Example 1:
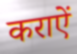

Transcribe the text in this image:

कराऐं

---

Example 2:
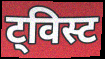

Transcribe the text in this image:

ट्विस्ट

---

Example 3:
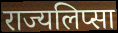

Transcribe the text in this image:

राज्यलिप्सा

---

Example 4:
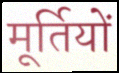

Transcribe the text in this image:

मूर्तियों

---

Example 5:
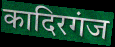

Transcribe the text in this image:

कादिरगंज